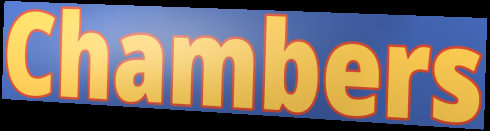
Chambers